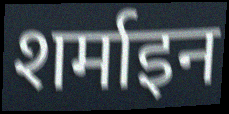
शर्माइन